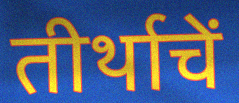
तीर्थाचें